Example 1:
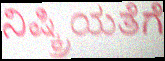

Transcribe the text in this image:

ನಿಷ್ಕ್ರಿಯತೆಗೆ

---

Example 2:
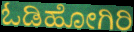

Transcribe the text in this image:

ಓಡಿಹೋಗಿರಿ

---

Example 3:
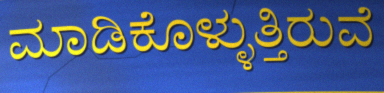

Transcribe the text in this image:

ಮಾಡಿಕೊಳ್ಳುತ್ತಿರುವೆ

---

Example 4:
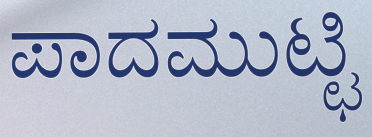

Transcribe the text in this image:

ಪಾದಮುಟ್ಟಿ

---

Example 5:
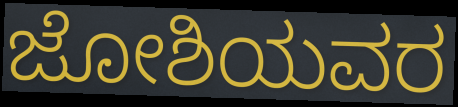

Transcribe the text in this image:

ಜೋಶಿಯವರ